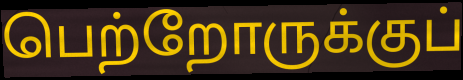
பெற்றோருக்குப்